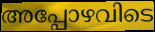
അപ്പോഴവിടെ